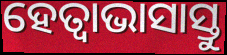
ହେତ୍ଵାଭାସାସ୍ତୁ